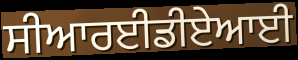
ਸੀਆਰਈਡੀਏਆਈ